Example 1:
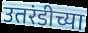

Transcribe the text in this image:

उतरंडीच्या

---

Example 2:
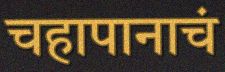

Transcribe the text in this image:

चहापानाचं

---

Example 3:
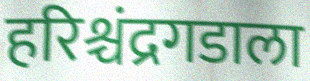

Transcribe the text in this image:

हरिश्चंद्रगडाला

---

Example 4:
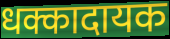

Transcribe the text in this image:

धक्‍कादायक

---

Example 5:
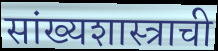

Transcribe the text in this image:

सांख्यशास्त्राची